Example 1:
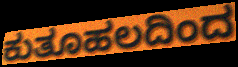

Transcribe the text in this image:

ಕುತೂಹಲದಿಂದ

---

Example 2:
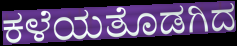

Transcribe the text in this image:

ಕಳೆಯತೊಡಗಿದ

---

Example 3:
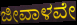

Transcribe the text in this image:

ಜೀವಾಳವೇ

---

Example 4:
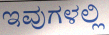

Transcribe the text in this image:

ಇವುಗಳಲ್ಲಿ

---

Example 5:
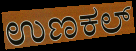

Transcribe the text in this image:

ಉಣಕಲ್